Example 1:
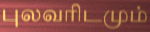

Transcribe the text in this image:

புலவரிடமும்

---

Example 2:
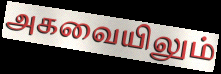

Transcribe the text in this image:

அகவையிலும்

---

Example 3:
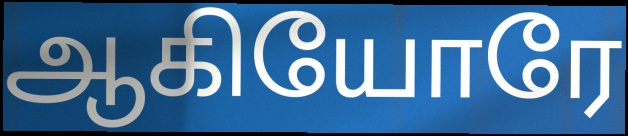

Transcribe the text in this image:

ஆகியோரே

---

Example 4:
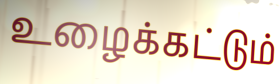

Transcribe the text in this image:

உழைக்கட்டும்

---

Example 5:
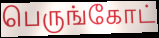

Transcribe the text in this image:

பெருங்கோட்